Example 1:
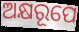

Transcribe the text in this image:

ଅକ୍ଷରୂପେ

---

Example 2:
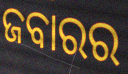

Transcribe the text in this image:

ଜବାରର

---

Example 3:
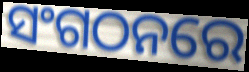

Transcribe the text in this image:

ସଂଗଠନରେ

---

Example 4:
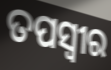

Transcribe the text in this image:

ତପସ୍ଵୀର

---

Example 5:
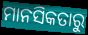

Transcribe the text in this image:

ମାନସିକତାରୁ